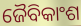
ଜୈବିକାଂଶ